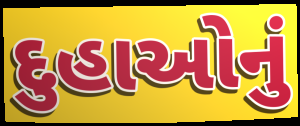
દુહાઓનું